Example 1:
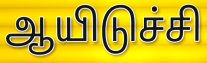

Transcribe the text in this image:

ஆயிடுச்சி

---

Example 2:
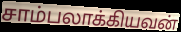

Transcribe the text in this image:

சாம்பலாக்கியவன்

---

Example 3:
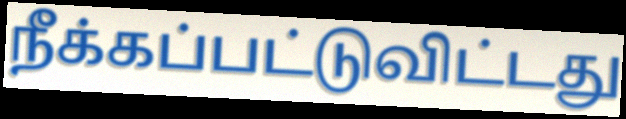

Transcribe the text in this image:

நீக்கப்பட்டுவிட்டது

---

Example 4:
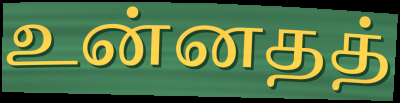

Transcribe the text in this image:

உன்னதத்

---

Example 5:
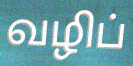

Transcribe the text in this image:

வழிப்